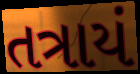
તત્રાયં